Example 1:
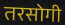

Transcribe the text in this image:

तरसोगी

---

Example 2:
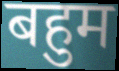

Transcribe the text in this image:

बहुम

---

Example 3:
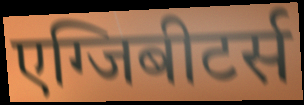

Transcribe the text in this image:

एग्जिबीटर्स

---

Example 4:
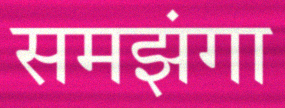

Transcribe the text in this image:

समझंगा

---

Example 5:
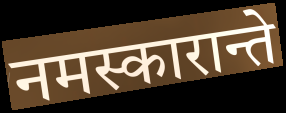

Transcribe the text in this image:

नमस्कारान्ते